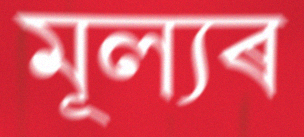
মূল্য়ৰ